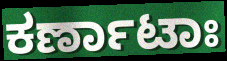
ಕರ್ಣಾಟಾಃ